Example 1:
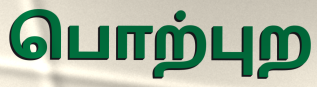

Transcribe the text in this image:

பொற்புற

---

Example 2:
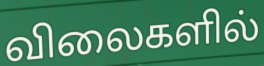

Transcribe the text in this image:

விலைகளில்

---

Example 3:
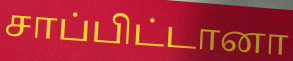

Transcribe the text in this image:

சாப்பிட்டானா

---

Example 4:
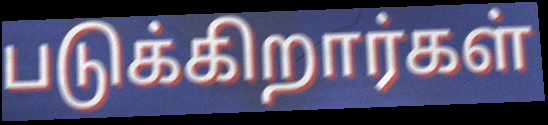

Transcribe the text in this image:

படுக்கிறார்கள்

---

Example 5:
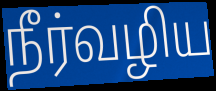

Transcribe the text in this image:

நீர்வழிய